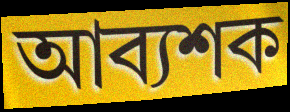
আব্যশক